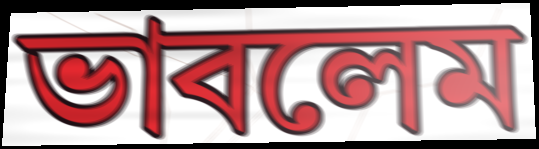
ভাবলেম